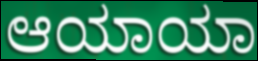
ಆಯಾಯಾ